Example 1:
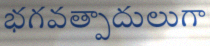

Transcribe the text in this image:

భగవత్పాదులుగా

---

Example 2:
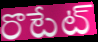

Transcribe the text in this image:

రొటేట్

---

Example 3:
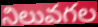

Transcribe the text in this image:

నిలువగల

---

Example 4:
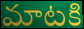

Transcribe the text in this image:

మాటకి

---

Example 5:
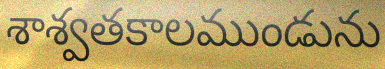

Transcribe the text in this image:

శాశ్వతకాలముండును